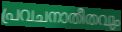
പ്രവചനാതീതവും